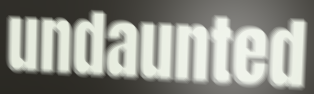
undaunted